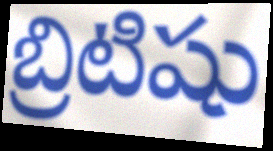
బ్రిటిషు